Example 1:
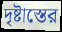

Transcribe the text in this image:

দৃষ্টাস্তের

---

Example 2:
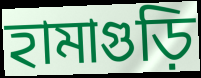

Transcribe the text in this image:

হামাগুড়ি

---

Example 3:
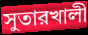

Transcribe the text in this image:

সুতারখালী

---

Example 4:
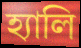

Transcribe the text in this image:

হ্যালি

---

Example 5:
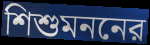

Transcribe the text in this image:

শিশুমননের